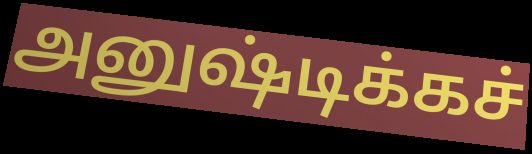
அனுஷ்டிக்கச்